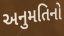
અનુમતિનો